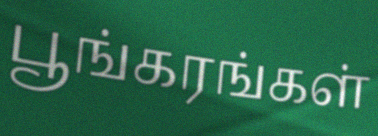
பூங்கரங்கள்